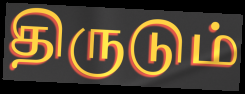
திருடும்